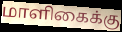
மாளிகைக்கு